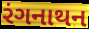
રંગનાથન